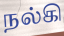
நல்கி